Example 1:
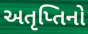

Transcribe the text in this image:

અતૃપ્તિનો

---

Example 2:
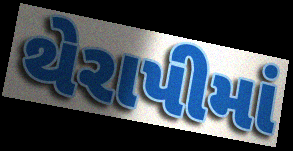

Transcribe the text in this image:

થેરાપીમાં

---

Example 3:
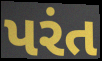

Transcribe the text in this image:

પરંત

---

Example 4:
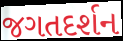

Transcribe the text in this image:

જગતદર્શન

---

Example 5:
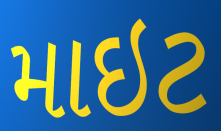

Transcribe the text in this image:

માઇટ